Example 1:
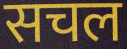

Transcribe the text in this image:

सचल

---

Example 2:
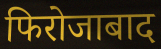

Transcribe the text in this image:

फिरोजाबाद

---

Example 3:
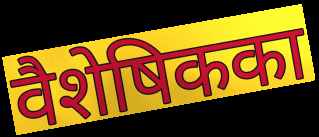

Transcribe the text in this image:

वैशेषिकका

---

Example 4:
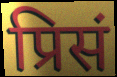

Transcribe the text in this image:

प्रिसं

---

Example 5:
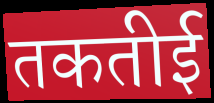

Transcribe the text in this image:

तकतीई